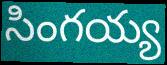
సింగయ్య